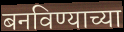
बनविण्याच्या